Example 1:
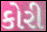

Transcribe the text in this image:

કોરી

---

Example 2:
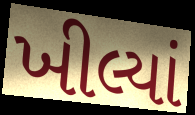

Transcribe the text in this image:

ખીલ્યાં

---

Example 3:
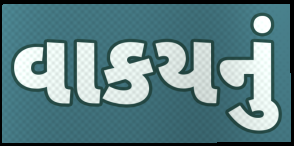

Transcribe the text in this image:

વાકયનું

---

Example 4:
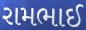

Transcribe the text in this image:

રામભાઈ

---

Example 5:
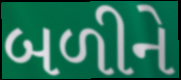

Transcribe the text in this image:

બળીને